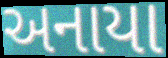
અનાયા